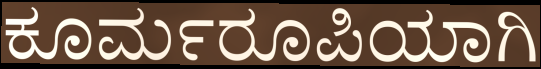
ಕೂರ್ಮರೂಪಿಯಾಗಿ